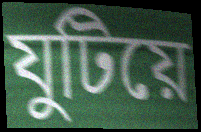
যুটিয়ে